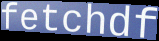
fetchdf